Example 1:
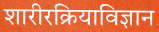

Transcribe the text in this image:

शारीरक्रियाविज्ञान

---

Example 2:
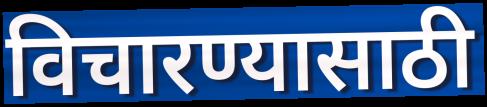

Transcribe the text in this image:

विचारण्यासाठी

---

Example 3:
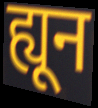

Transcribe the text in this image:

ह्यून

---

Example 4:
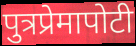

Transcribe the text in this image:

पुत्रप्रेमापोटी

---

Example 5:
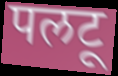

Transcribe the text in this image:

पलटू